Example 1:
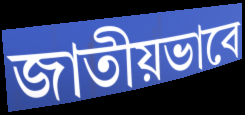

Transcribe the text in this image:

জাতীয়ভাবে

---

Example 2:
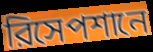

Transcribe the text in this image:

রিসেপশানে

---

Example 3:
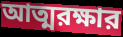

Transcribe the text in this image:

আত্মরক্ষার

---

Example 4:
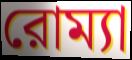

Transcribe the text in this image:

রোম্যা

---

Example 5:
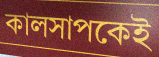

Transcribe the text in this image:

কালসাপকেই